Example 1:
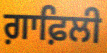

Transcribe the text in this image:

ਗ਼ਾਫ਼ਿਲੀ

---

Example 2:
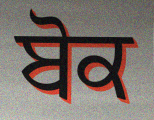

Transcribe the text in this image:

ਬੋਕ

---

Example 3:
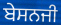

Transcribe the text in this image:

ਬੇਸਨਜੀ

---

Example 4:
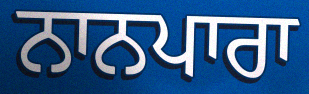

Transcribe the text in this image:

ਨਾਨਪਾਰਾ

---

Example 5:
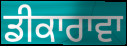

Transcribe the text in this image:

ਡੀਕਾਰਾਵਾ